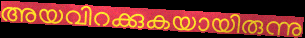
അയവിറക്കുകയായിരുന്നു